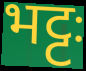
भट्टः